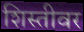
शिस्तीवर